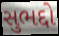
સુભદ્દો